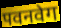
पवनवेग